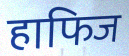
हाफिज